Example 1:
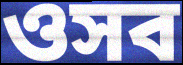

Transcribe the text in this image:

ওসব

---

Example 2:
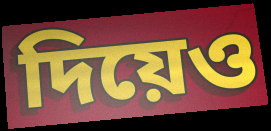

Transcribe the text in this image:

দিয়েও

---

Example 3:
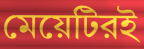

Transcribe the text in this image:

মেয়েটিরই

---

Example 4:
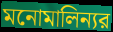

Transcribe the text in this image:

মনোমালিন্যর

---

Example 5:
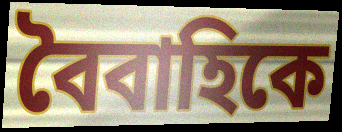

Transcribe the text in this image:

বৈবাহিকে